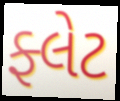
ફ્લેટ